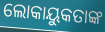
ଲୋକାୟୁକତାଙ୍କ